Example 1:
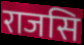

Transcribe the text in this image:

राजसि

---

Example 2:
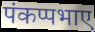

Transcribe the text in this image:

पंकप्पभाए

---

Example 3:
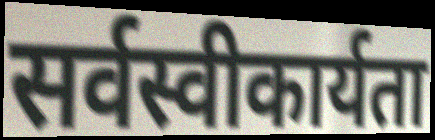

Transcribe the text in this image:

सर्वस्वीकार्यता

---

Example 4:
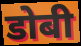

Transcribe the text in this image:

डोबी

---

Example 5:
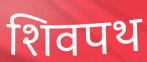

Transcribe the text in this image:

शिवपथ